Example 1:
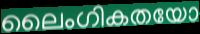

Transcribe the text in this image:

ലൈംഗികതയോ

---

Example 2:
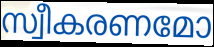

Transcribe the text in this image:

സ്വീകരണമോ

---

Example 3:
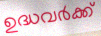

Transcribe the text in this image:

ഉദ്ധവർക്ക്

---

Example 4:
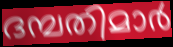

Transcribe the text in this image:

ദമ്പതിമാർ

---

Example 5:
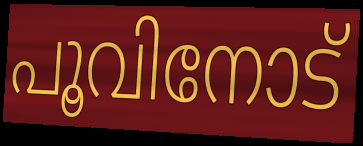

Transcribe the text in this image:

പൂവിനോട്